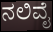
ನಲಿವೈ